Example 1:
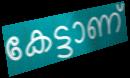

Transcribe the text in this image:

കേട്ടാണ്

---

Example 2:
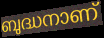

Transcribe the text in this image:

ബുദ്ധനാണ്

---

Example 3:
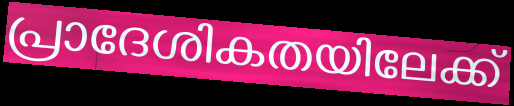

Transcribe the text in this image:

പ്രാദേശികതയിലേക്ക്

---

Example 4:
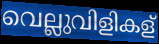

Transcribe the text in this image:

വെല്ലുവിളികള്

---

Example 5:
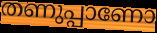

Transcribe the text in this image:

തണുപ്പാണോ